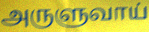
அருளுவாய்